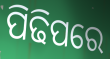
ପିଢିପରେ